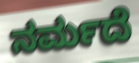
ನರ್ಮದೆ